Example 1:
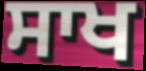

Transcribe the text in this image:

ਸਾਖ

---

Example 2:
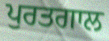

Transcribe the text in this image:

ਪੁਰਤਗਾਲ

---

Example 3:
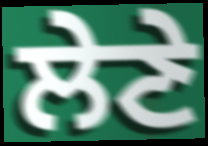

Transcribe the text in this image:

ਲੇਣੇ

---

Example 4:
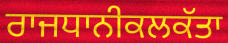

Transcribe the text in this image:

ਰਾਜਧਾਨੀਕਲਕੱਤਾ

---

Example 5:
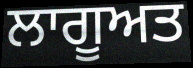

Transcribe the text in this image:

ਲਾਗੂਅਤ